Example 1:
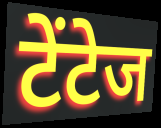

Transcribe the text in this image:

टेंटेज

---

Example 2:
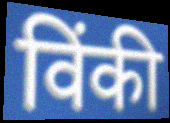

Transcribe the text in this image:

विंकी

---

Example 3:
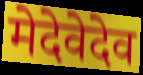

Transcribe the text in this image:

मेदेवेदेव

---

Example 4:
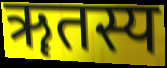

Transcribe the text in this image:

ॠतस्य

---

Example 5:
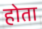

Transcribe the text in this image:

होता